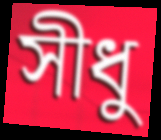
সীধু